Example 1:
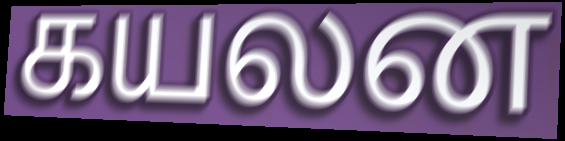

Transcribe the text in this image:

கயலன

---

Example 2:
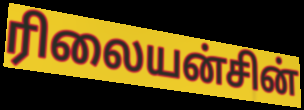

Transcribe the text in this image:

ரிலையன்சின்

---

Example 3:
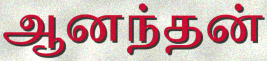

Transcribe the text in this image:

ஆனந்தன்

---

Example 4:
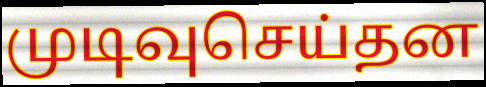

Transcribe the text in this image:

முடிவுசெய்தன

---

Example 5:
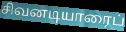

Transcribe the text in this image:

சிவனடியாரைப்